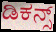
ಡಿಕನ್ಸ್